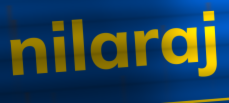
nilaraj